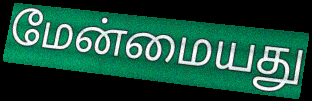
மேன்மையது